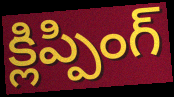
క్లిప్పింగ్